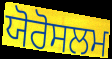
ਯੋਰੋਸਲਮ